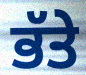
ਭੱਤੇ